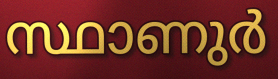
സ്ഥാണുർ